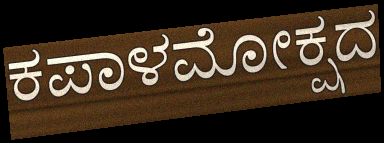
ಕಪಾಳಮೋಕ್ಷದ